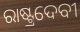
ରାଷ୍ଟ୍ରଦେବୀ